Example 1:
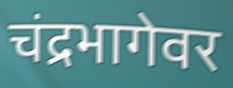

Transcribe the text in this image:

चंद्रभागेवर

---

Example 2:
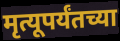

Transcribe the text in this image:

मृत्यूपर्यंतच्या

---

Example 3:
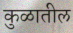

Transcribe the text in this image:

कुळातील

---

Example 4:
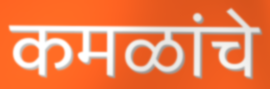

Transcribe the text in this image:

कमळांचे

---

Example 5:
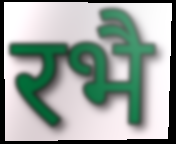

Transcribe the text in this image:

रभै